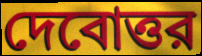
দেবোত্তর